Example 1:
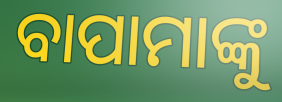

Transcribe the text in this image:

ବାପାମାଙ୍କୁ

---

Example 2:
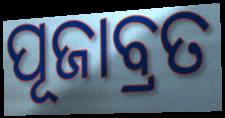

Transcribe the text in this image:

ପୂଜାବ୍ରତ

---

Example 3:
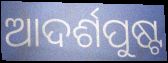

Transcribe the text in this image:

ଆଦର୍ଶପୁଷ୍ଟ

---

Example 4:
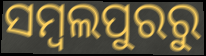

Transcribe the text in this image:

ସମ୍ବଲପୁରରୁ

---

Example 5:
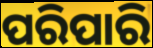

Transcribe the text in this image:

ପରିପାରି